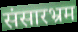
संसारभ्रम